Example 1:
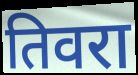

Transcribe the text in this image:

तिवरा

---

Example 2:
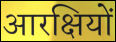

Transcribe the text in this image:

आरक्षियों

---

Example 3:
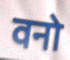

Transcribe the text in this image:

वनो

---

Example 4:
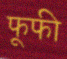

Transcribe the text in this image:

फूफी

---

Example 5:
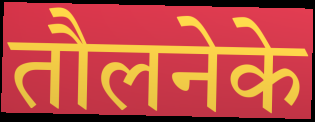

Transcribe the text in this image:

तौलनेके